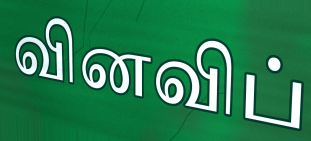
வினவிப்